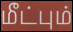
மீட்பும்